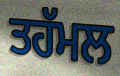
ਤਹੱਮਲ